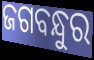
ଜଗବନ୍ଧୁର